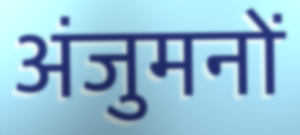
अंजुमनों